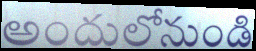
అందులోనుండి